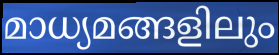
മാധ്യമങ്ങളിലും